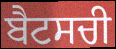
ਬੈਟਸਚੀ